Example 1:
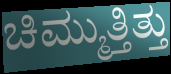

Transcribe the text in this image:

ಚಿಮ್ಮುತ್ತಿತ್ತು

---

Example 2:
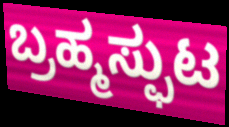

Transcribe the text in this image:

ಬ್ರಹ್ಮಸ್ಫುಟ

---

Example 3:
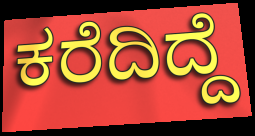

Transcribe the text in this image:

ಕರೆದಿದ್ದೆ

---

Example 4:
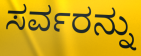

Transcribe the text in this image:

ಸರ್ವರನ್ನು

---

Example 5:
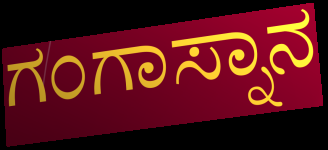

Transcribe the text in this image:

ಗಂಗಾಸ್ನಾನ